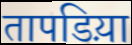
तापडिय़ा